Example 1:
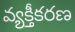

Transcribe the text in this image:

వ్యక్తీకరణ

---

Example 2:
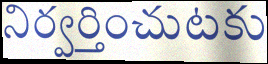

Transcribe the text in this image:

నిర్వర్తించుటకు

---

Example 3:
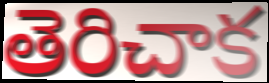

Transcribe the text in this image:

తెరిచాక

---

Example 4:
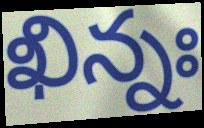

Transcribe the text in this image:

ఖిన్నః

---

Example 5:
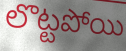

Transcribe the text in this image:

లొట్టపోయి